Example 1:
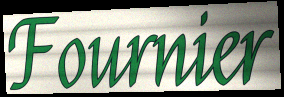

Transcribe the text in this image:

Fournier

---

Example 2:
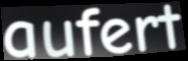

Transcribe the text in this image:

aufert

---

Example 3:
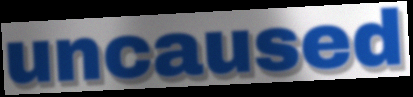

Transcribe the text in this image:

uncaused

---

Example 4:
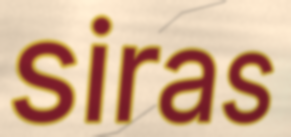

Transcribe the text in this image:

siras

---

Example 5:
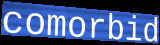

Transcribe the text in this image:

comorbid